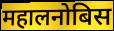
महालनोबिस